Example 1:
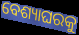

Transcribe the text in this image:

ବେଶ୍ୟାଘରକୁ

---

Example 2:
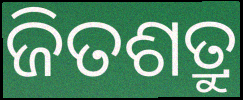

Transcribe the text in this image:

ଜିତଶତ୍ରୁ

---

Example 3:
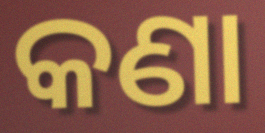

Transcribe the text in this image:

କଣା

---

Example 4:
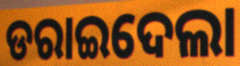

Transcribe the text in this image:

ଡରାଇଦେଲା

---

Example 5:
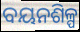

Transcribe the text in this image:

ବୟନଶିଳ୍ପ